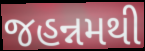
જહન્નમથી